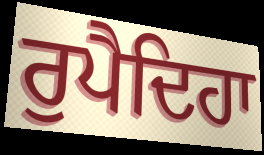
ਰੁਪੈਦਿਹਾ